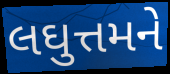
લઘુત્તમને